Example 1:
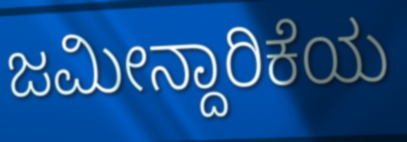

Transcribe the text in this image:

ಜಮೀನ್ದಾರಿಕೆಯ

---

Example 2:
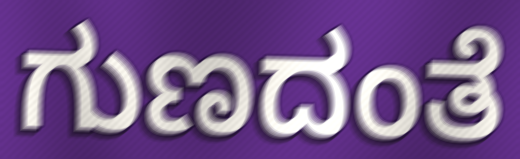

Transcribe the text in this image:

ಗುಣದಂತೆ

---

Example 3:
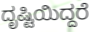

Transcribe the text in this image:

ದೃಷ್ಟಿಯಿದ್ದರೆ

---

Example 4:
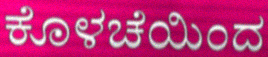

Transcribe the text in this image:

ಕೊಳಚೆಯಿಂದ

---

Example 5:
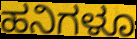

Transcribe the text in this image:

ಹನಿಗಳೂ